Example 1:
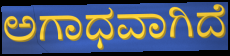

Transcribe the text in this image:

ಅಗಾಧವಾಗಿದೆ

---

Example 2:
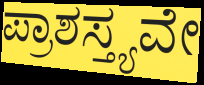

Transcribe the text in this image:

ಪ್ರಾಶಸ್ತ್ಯವೇ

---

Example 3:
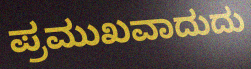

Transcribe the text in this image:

ಪ್ರಮುಖವಾದುದು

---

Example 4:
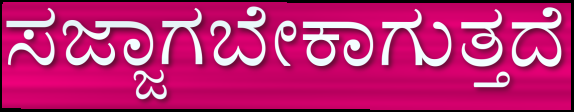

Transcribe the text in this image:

ಸಜ್ಜಾಗಬೇಕಾಗುತ್ತದೆ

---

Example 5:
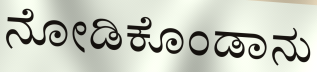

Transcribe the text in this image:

ನೋಡಿಕೊಂಡಾನು